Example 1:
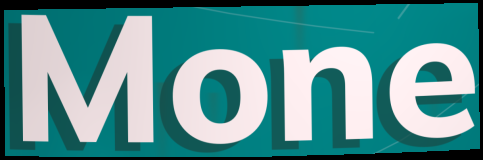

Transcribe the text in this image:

Mone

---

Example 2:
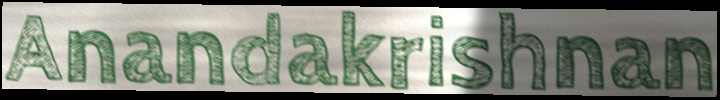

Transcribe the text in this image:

Anandakrishnan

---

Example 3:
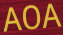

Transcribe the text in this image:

AOA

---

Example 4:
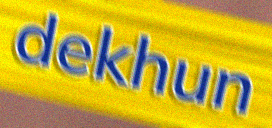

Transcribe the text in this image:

dekhun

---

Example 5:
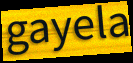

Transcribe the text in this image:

gayela